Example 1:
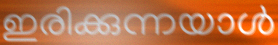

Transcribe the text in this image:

ഇരിക്കുന്നയാൾ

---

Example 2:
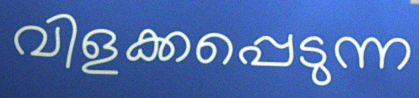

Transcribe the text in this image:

വിളക്കപ്പെടുന്ന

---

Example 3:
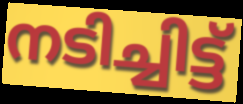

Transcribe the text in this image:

നടിച്ചിട്ട്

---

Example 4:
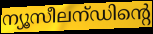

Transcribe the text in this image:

ന്യൂസീലന്ഡിന്റെ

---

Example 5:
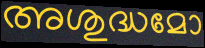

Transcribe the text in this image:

അശുദ്ധമോ